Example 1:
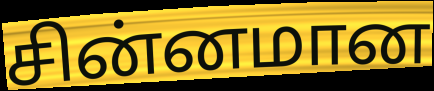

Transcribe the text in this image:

சின்னமான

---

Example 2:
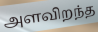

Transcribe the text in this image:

அளவிறந்த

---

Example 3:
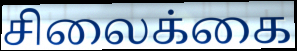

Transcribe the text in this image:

சிலைக்கை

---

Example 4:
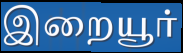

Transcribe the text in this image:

இறையூர்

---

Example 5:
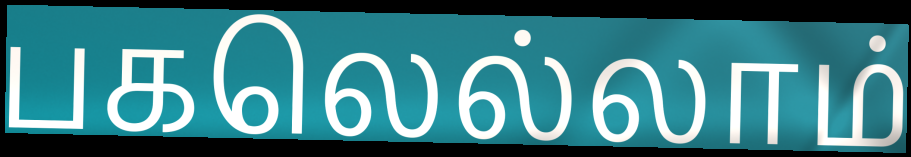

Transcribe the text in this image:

பகலெல்லாம்